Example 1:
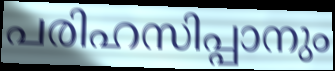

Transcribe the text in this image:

പരിഹസിപ്പാനും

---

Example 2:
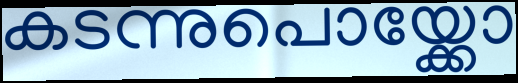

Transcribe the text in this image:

കടന്നുപൊയ്ക്കോ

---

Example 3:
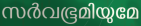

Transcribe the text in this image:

സർവഭൂമിയുമേ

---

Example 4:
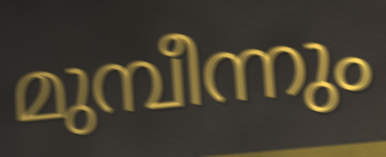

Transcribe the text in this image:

മുമ്പീന്നും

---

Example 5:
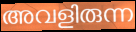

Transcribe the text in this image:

അവളിരുന്ന